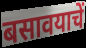
बसावयाचें